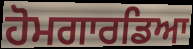
ਹੋਮਗਾਰਡਿਆ